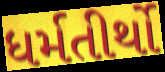
ધર્મતીર્થો